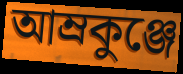
আম্রকুঞ্জে